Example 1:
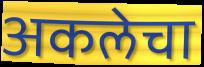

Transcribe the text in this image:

अकलेचा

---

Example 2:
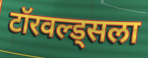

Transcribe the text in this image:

टॉरवल्ड्सला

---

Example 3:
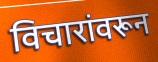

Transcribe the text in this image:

विचारांवरून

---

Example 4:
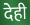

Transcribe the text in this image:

देही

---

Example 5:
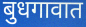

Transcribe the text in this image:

बुधगावात